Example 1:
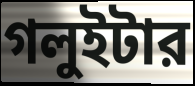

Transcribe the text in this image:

গলুইটার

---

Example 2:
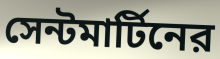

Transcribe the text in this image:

সেন্টমার্টিনের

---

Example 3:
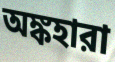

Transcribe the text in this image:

অঙ্কহারা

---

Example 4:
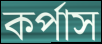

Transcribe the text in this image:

কর্পাস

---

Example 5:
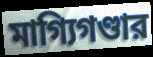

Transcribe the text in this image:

মাগ্যিগণ্ডার